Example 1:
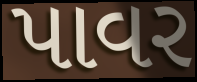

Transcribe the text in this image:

પાવર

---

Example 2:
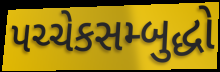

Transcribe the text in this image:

પચ્ચેકસમ્બુદ્ધો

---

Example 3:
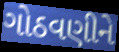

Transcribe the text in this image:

ગોઠવણીને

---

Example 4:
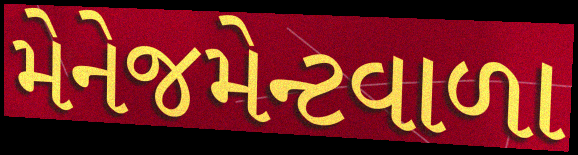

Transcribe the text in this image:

મેનેજમેન્ટવાળા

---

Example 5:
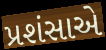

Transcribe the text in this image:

પ્રશંસાએ